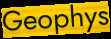
Geophys